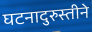
घटनादुरुस्तीने